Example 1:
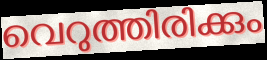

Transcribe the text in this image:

വെറുത്തിരിക്കും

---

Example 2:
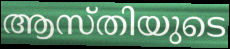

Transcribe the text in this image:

ആസ്തിയുടെ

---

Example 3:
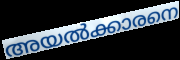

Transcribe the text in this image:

അയൽക്കാരനെ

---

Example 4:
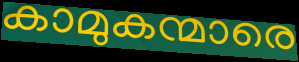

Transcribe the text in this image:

കാമുകന്മാരെ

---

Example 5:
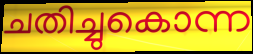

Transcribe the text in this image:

ചതിച്ചുകൊന്ന